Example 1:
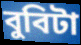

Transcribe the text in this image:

বুবিটা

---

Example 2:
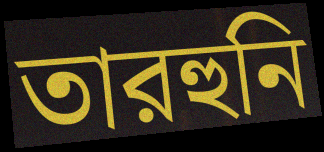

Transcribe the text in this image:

তারহুনি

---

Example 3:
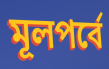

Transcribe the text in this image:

মূলপর্বে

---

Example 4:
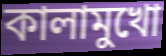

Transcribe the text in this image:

কালামুখো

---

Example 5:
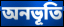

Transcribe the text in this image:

অনভূতি